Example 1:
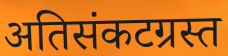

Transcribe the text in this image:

अतिसंकटग्रस्त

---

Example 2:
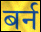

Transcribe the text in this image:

बर्न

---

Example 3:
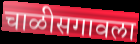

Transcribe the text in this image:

चाळीसगावला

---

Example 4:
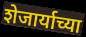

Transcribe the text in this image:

शेजार्याच्या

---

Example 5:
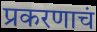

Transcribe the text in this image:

प्रकरणाचं